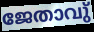
ജേതാവു്